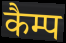
कैम्प